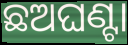
ଛଅଘଣ୍ଟା